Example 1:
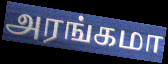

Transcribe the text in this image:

அரங்கமா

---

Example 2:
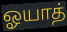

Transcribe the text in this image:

ஓயாத்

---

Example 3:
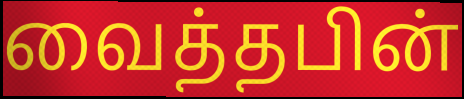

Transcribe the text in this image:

வைத்தபின்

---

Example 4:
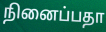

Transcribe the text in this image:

நினைப்பதா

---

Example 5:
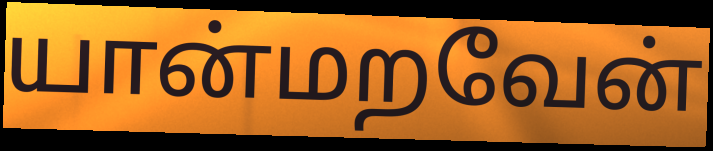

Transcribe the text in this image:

யான்மறவேன்